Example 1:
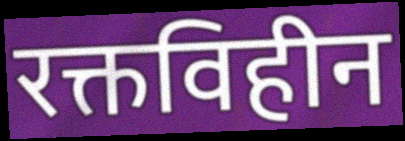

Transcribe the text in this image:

रक्तविहीन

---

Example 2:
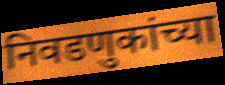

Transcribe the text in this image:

निवडणुकांच्या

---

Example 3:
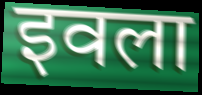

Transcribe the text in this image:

इवला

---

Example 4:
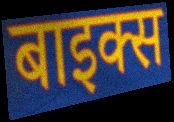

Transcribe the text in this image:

बाइक्स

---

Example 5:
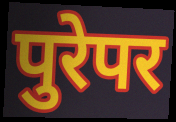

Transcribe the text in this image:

पुरेपर